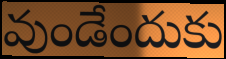
వుండేందుకు